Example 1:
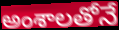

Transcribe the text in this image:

అంశాలతోనే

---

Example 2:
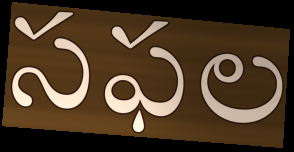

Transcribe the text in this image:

సఫల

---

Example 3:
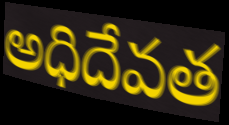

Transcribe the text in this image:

అధిదేవత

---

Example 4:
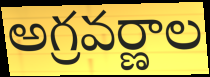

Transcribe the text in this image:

అగ్రవర్ణాల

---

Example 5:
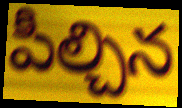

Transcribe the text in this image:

పీల్చిన